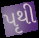
પૃથી